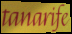
tanarife